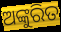
ଅଙ୍କୁରିତ